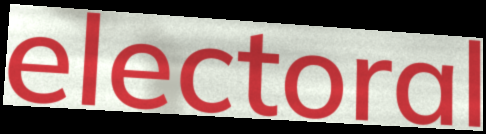
electoral